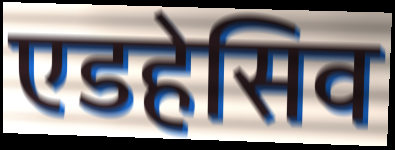
एडहेसिव